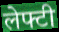
लेफ्टी